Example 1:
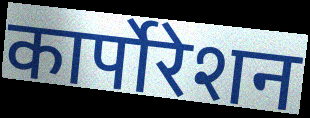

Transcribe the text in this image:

कार्पोरेशन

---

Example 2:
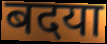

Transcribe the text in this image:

बदया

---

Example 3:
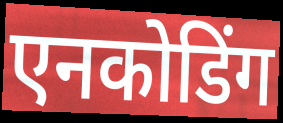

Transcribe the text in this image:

एनकोडिंग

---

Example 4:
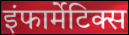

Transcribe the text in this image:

इंफार्मेटिक्स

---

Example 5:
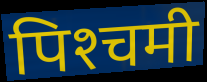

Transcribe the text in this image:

पिश्चमी